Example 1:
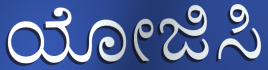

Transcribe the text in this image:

ಯೋಜಿಸಿ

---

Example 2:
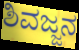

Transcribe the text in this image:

ಶಿವಜ್ಜನ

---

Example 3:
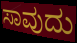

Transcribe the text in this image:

ಸಾವುದು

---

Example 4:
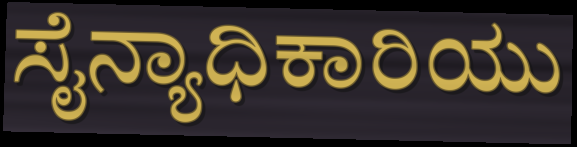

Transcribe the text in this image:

ಸೈನ್ಯಾಧಿಕಾರಿಯು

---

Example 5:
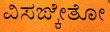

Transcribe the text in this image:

ವಿಸಙ್ಕೇತೋ